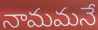
నామమనే